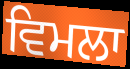
ਵਿਮਲਾ